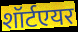
शॉर्टएयर